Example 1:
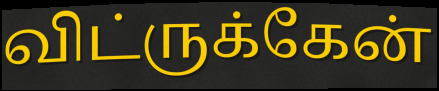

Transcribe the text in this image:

விட்ருக்கேன்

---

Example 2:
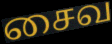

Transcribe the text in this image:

சைவ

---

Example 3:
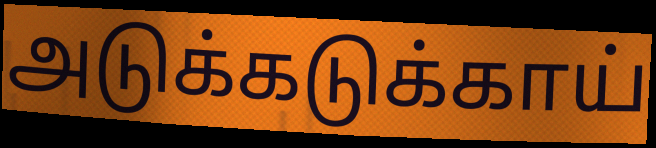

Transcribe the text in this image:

அடுக்கடுக்காய்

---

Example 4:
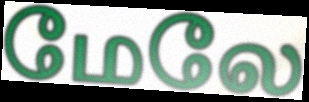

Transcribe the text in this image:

மேலே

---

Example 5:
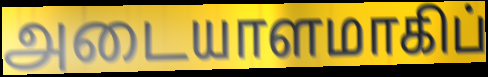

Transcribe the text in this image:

அடையாளமாகிப்